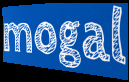
mogal